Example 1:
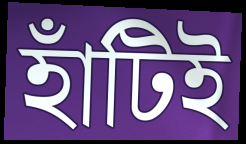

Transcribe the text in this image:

হাঁটিই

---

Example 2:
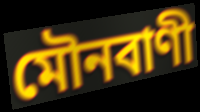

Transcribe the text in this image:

মৌনবাণী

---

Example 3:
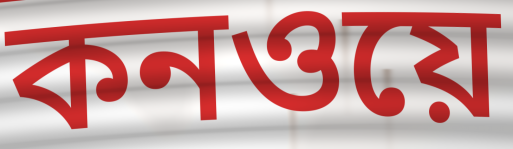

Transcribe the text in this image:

কনওয়ে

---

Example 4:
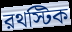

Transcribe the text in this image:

রথস্টিক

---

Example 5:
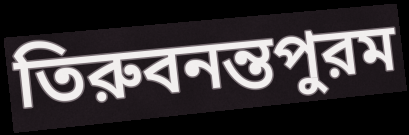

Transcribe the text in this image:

তিরুবনন্তপুরম